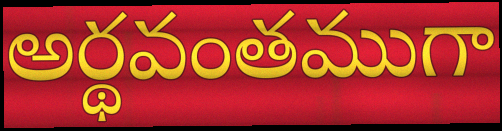
అర్థవంతముగా